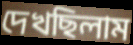
দেখছিলাম